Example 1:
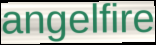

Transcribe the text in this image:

angelfire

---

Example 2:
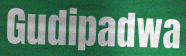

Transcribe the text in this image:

Gudipadwa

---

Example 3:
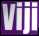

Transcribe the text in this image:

Viji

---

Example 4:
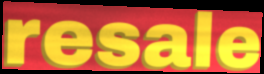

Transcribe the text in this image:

resale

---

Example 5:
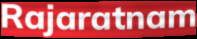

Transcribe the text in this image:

Rajaratnam